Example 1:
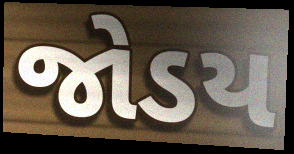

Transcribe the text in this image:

જોડય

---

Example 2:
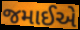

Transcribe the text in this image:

જમાઈએ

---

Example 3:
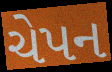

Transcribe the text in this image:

ચેપન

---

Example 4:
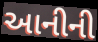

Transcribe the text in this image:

આનીની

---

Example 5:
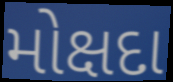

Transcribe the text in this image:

મોક્ષદા